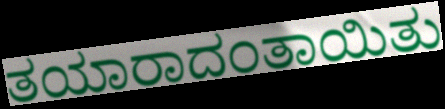
ತಯಾರಾದಂತಾಯಿತು